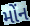
મોંન